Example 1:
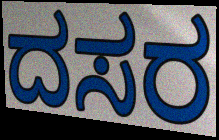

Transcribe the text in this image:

ದಸರ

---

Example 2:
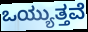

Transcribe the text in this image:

ಒಯ್ಯುತ್ತವೆ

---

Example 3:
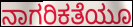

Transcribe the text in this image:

ನಾಗರಿಕತೆಯೂ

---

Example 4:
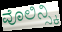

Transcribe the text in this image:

ವೊಲಿನ್ಸ್ಕಿ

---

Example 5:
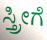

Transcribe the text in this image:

ಸ್ತ್ರೀಗೆ